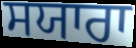
ਸਯਾਰਾ